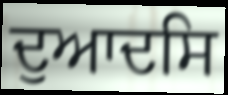
ਦੁਆਦਸਿ